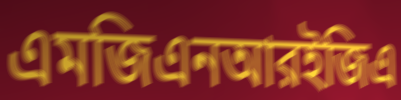
এমজিএনআরইজিএ